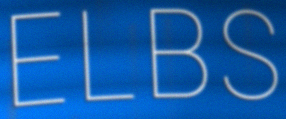
ELBS